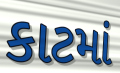
કાટમાં